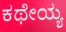
ಕಥೇಯ್ಯ